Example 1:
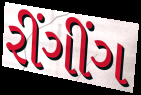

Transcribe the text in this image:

રીંગીંગ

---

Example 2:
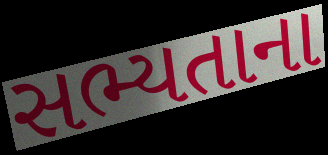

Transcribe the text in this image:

સભ્યતાના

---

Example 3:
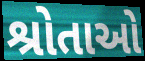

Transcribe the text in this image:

શ્રોતાઓ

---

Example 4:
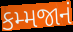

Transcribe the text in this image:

કમ્મજાનં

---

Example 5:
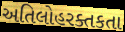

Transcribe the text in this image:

અતિલોહરક્તકતા